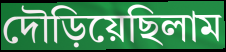
দৌড়িয়েছিলাম